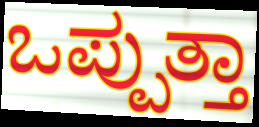
ಒಪ್ಪುತ್ತಾ